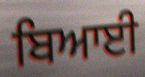
ਬਿਆਈ